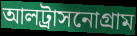
আলট্রাসনোগ্রাম